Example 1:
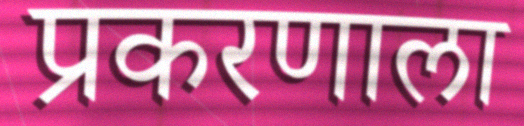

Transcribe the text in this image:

प्रकरणाला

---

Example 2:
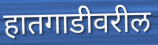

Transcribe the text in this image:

हातगाडीवरील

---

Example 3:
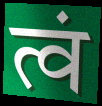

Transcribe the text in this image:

त्वं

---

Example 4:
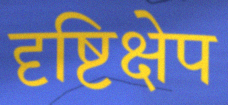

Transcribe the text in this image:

दृष्टिक्षेप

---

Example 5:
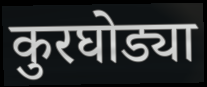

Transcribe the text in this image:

कुरघोड्या